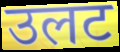
उलट